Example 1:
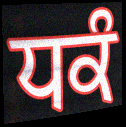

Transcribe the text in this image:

ਧਕੰ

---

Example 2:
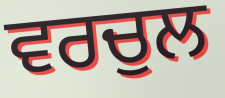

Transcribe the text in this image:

ਵਰਚੁਲ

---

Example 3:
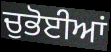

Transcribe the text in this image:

ਚੁਭੋਈਆਂ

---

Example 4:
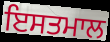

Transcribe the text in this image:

ਇਸਤਮਾਲ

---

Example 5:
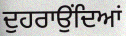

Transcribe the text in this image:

ਦੁਹਰਾਉਂਦਿਆਂ